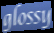
glossy